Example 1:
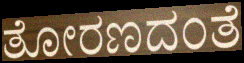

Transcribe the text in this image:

ತೋರಣದಂತೆ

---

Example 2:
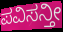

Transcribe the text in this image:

ಪವಿಸನ್ತೀ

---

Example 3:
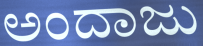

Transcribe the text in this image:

ಅಂದಾಜು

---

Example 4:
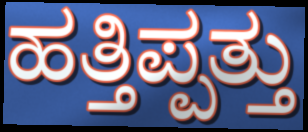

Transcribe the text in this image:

ಹತ್ತಿಪ್ಪತ್ತು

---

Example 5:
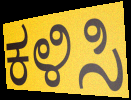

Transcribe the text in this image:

ಕಳಿಸಿ